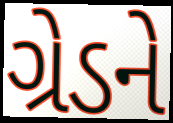
ગ્રેડને